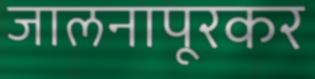
जालनापूरकर